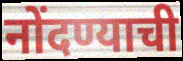
नोंदण्याची